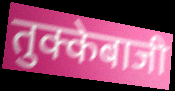
तुक्केबाजी